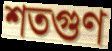
শতগুণ